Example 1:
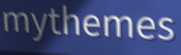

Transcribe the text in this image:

mythemes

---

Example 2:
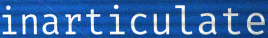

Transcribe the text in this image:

inarticulate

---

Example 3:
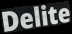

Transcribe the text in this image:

Delite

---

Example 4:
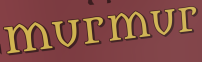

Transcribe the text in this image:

murmur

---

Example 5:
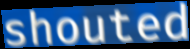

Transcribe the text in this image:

shouted